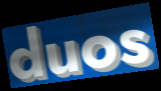
duos